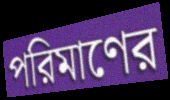
পরিমাণের